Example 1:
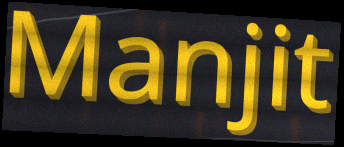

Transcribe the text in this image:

Manjit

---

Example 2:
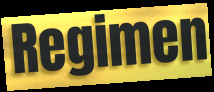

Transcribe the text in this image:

Regimen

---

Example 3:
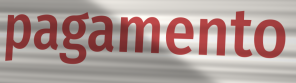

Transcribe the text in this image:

pagamento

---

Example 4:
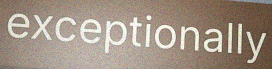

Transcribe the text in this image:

exceptionally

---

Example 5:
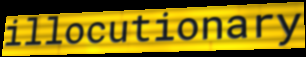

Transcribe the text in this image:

illocutionary